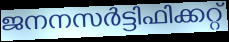
ജനനസർട്ടിഫിക്കറ്റ്